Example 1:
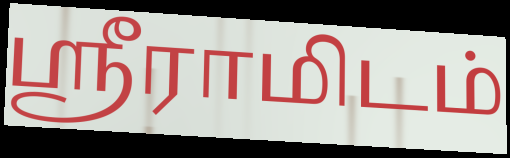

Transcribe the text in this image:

ஸ்ரீராமிடம்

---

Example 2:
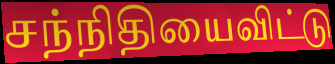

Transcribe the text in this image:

சந்நிதியைவிட்டு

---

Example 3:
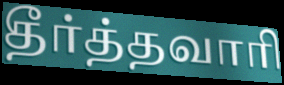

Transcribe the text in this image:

தீர்த்தவாரி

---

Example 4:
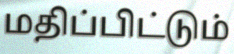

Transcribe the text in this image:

மதிப்பிட்டும்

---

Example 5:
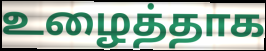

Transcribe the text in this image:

உழைத்தாக